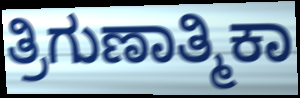
ತ್ರಿಗುಣಾತ್ಮಿಕಾ